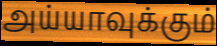
அய்யாவுக்கும்